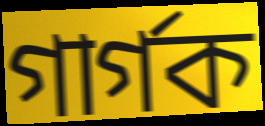
গাৰ্গক